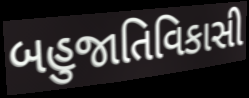
બહુજાતિવિકાસી